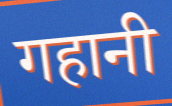
गहानी